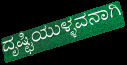
ದೃಷ್ಟಿಯುಳ್ಳವನಾಗಿ